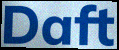
Daft